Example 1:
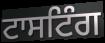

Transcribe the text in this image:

ਟਾਸਟਿੰਗ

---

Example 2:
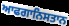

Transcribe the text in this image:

ਆਫਗਾਨਿਸਤਾਨ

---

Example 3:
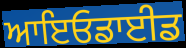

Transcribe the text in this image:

ਆਇਓਡਾਈਡ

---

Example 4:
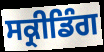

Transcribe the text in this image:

ਸਕ੍ਰੀਡਿੰਗ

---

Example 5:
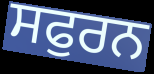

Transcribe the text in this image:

ਸਫੁਰਨ